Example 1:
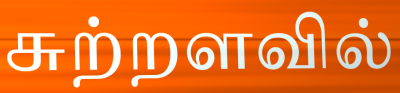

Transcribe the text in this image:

சுற்றளவில்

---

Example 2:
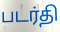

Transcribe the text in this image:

படர்தி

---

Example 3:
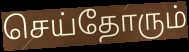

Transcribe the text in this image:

செய்தோரும்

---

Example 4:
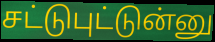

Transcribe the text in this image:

சட்டுபுட்டுன்னு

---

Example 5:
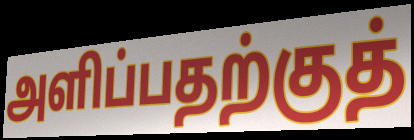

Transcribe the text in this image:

அளிப்பதற்குத்